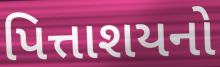
પિત્તાશયનો